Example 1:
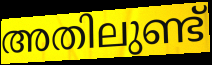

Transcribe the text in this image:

അതിലുണ്ട്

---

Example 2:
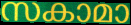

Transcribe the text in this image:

സകാമാ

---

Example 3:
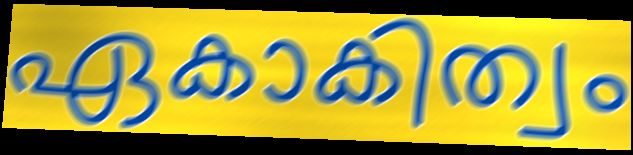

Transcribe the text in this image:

ഏകാകിത്വം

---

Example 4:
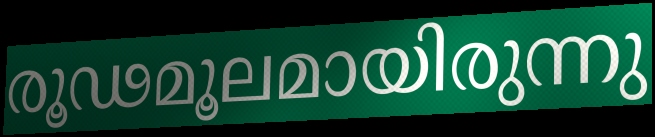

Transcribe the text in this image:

രൂഢമൂലമായിരുന്നു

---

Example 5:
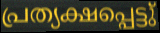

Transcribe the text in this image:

പ്രത്യക്ഷപ്പെട്ടു്